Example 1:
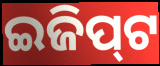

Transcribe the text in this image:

ଇଜିପ୍‍ଟ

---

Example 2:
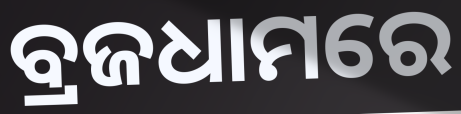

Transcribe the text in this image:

ବ୍ରଜଧାମରେ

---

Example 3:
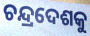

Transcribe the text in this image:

ଚନ୍ଦ୍ରଦେଶକୁ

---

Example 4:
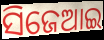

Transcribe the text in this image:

ସିଜେଆଇ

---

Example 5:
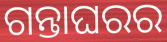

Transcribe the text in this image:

ଗନ୍ତାଘରର